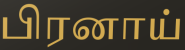
பிரனாய்